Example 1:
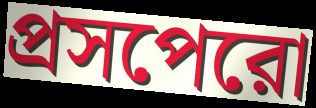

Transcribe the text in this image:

প্রসপেরো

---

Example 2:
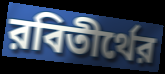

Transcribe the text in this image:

রবিতীর্থের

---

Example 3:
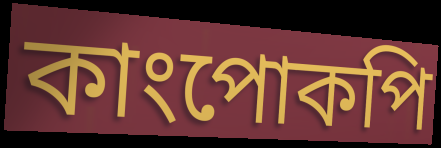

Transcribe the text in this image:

কাংপোকপি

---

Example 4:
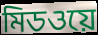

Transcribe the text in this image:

মিডওয়ে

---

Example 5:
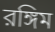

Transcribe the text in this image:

রঙ্গিম